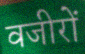
वजीरों